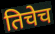
तिचेच